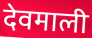
देवमाली